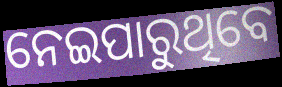
ନେଇପାରୁଥିବେ